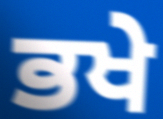
ਭਖੇ